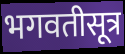
भगवतीसूत्र